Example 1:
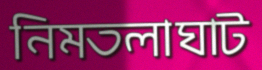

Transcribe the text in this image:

নিমতলাঘাট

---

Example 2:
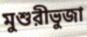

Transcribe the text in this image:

মুশুরীভুজা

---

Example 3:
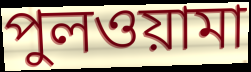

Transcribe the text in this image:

পুলওয়ামা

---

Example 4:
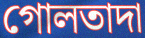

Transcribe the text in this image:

গোলতাদা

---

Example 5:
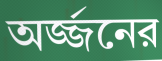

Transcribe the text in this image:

অর্জ্জনের